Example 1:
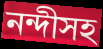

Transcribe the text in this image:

নন্দীসহ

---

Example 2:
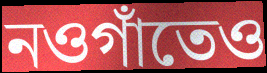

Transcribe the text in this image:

নওগাঁতেও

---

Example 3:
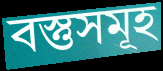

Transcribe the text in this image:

বস্তুসমূহ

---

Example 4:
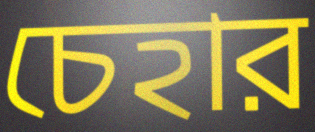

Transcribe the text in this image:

চেহার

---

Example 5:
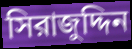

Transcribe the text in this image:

সিরাজুদ্দিন